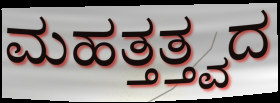
ಮಹತ್ತತ್ತ್ವದ